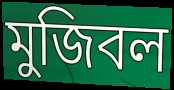
মুজিবল